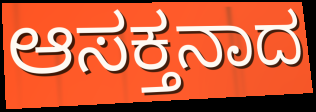
ಆಸಕ್ತನಾದ